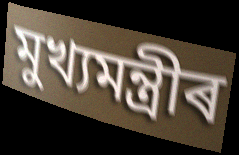
মুখ্যমন্ত্ৰীৰ